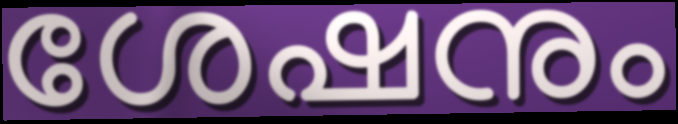
ശേഷനും